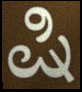
ಷಿ